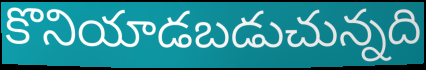
కొనియాడబడుచున్నది